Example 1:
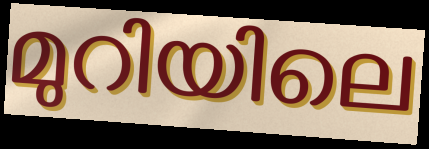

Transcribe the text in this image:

മുറിയിലെ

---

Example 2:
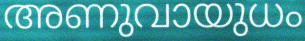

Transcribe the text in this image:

അണുവായുധം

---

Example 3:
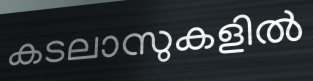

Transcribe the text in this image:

കടലാസുകളിൽ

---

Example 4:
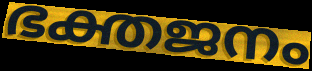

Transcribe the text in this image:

ഭക്തജനം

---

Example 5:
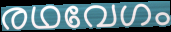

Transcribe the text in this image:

രഥവേഗം